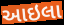
આઇલા